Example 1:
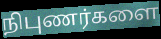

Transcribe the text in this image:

நிபுணர்களை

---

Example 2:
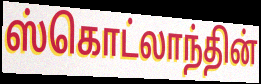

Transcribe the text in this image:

ஸ்கொட்லாந்தின்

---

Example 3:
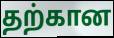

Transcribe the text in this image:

தற்கான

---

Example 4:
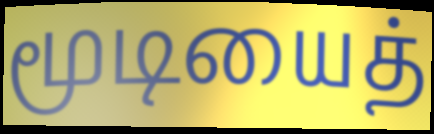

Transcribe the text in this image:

மூடியைத்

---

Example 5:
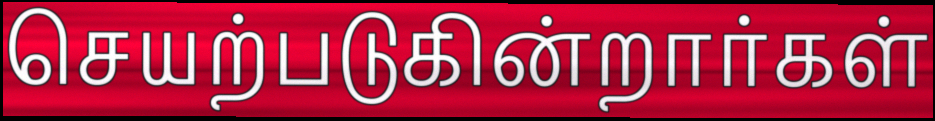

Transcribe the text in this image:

செயற்படுகின்றார்கள்